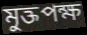
মুক্তপক্ষ